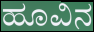
ಹೂವಿನ